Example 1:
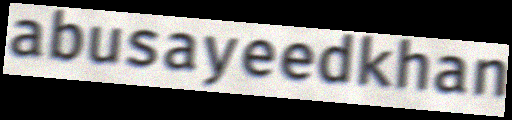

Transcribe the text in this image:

abusayeedkhan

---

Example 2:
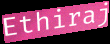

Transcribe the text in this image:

Ethiraj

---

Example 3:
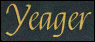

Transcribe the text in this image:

Yeager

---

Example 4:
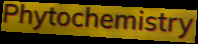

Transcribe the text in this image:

Phytochemistry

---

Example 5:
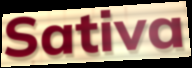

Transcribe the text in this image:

Sativa